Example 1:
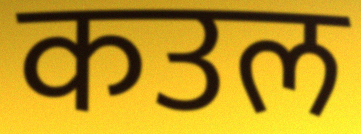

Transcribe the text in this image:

कउल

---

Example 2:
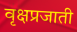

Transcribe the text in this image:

वृक्षप्रजाती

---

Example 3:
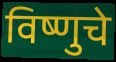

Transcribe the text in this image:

विष्णुचे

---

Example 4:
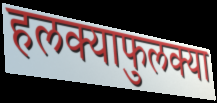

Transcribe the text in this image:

हलक्याफुलक्या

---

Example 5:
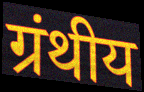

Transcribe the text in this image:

ग्रंथीय